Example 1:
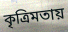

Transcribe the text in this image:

কৃত্রিমতায়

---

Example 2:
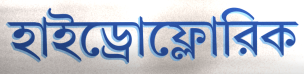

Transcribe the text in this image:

হাইড্রোফ্লোরিক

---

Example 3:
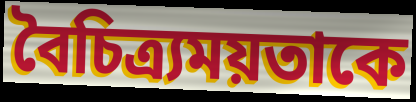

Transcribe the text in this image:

বৈচিত্র্যময়তাকে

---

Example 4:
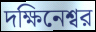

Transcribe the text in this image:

দক্ষিনেশ্বর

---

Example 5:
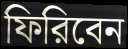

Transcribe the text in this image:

ফিরিবেন